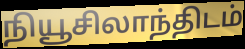
நியூசிலாந்திடம்